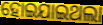
ହୋଇଯାଇଥଲା